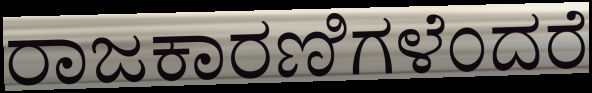
ರಾಜಕಾರಣಿಗಳೆಂದರೆ